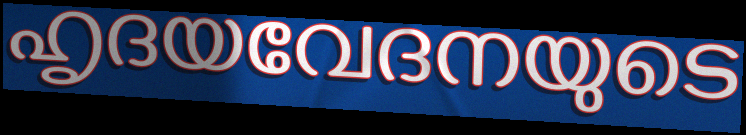
ഹൃദയവേദനയുടെ